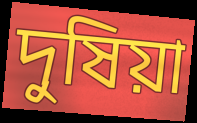
দুষিয়া